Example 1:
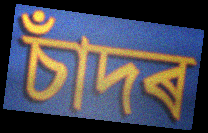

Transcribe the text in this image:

চাঁদৰ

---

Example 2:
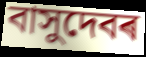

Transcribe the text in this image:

বাসুদেবৰ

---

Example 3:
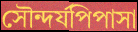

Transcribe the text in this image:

সৌন্দৰ্যপিপাসা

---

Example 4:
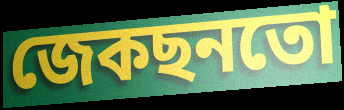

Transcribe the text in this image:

জেকছনতো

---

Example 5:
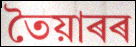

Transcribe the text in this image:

তৈয়াৰৰ